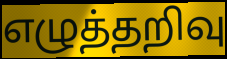
எழுத்தறிவு